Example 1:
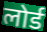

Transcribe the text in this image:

लोर्ड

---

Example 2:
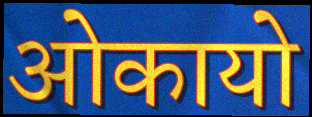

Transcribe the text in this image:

ओकायो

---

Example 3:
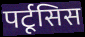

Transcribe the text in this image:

पर्टूसिस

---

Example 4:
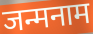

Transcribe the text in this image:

जन्मनाम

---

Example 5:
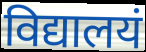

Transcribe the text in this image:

विद्यालयं